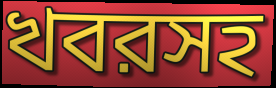
খবরসহ